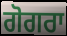
ਗੋਗਰਾ